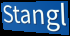
Stangl